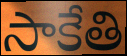
సాకేతి